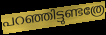
പറഞ്ഞിട്ടുണ്ടത്രേ